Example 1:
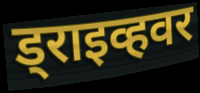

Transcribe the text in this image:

ड्राइव्हवर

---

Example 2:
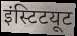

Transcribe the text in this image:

इंस्टिटयूट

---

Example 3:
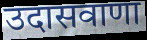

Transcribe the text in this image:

उदासवाणा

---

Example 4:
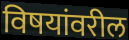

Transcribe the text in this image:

विषयांवरील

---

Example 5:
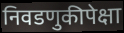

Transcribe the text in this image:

निवडणुकीपेक्षा